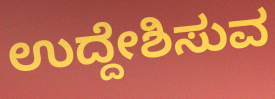
ಉದ್ದೇಶಿಸುವ